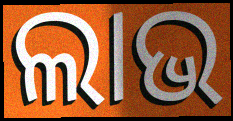
ଲାଭ